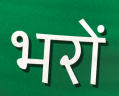
भरों